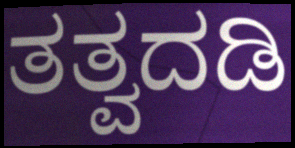
ತತ್ವದಡಿ